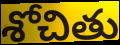
శోచితు